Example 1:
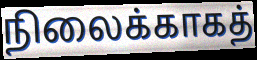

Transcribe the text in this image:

நிலைக்காகத்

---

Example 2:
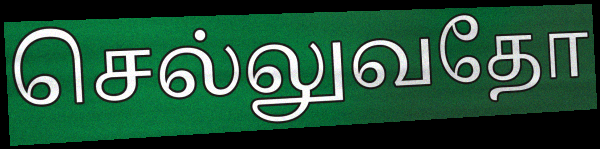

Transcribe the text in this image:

செல்லுவதோ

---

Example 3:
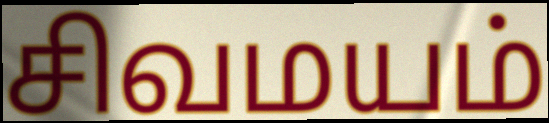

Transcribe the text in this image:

சிவமயம்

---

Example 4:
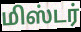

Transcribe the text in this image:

மிஸ்டர்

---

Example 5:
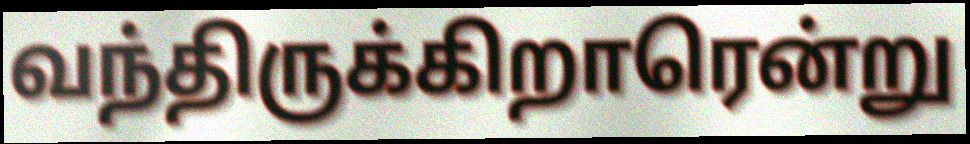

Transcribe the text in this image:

வந்திருக்கிறாரென்று